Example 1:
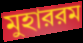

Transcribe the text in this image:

মুহাররম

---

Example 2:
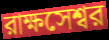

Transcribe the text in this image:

রাক্ষসেশ্বর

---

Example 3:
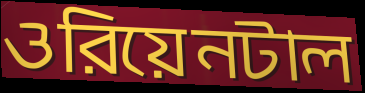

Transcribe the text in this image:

ওরিয়েনটাল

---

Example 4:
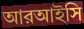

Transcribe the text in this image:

আরআইসি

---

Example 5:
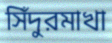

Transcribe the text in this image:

সিঁদুরমাখা